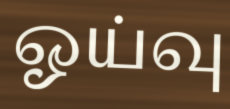
ஓய்வு